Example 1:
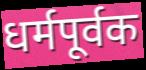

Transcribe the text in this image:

धर्मपूर्वक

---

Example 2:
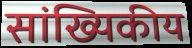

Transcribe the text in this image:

सांख्यिकीय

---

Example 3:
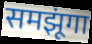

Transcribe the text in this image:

समझूंगा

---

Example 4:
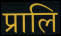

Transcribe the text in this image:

प्रालि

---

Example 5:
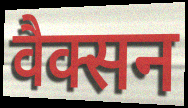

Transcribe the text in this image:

वैक्सन